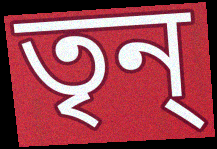
তৃন্